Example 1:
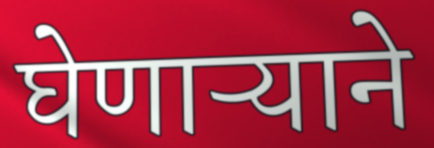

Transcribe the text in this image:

घेणाऱ्याने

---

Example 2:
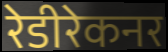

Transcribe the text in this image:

रेडीरेकनर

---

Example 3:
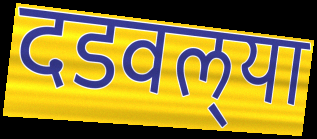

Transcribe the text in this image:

दडवल्या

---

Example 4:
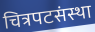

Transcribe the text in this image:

चित्रपटसंस्था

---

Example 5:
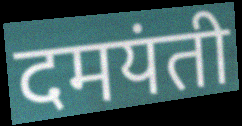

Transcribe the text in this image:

दमयंती